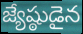
జ్యేష్ఠుడైన